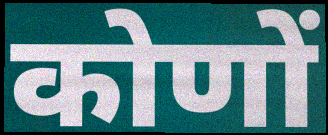
कोणों